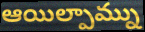
ఆయిల్పామ్ను